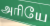
அரியே